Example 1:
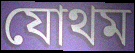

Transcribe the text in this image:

যোথম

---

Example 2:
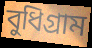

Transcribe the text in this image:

বুধিগ্রাম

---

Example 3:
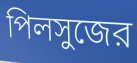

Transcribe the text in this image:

পিলসুজের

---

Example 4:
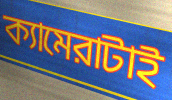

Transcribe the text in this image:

ক্যামেরাটাই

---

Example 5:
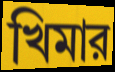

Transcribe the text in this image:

খিমার